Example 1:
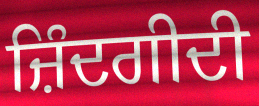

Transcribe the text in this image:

ਜ਼ਿੰਦਗੀਦੀ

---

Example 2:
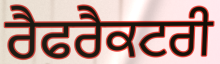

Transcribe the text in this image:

ਰੈਫਰੈਕਟਰੀ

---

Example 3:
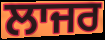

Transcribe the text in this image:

ਲਾਜਰ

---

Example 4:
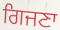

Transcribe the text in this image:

ਗਿਜਣਾ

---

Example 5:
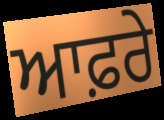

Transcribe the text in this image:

ਆਫ਼ਰੇ